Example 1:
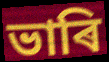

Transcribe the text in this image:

ভাৰি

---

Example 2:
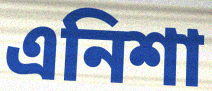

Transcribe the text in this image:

এনিশা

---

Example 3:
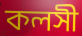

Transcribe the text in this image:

কলসী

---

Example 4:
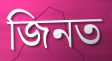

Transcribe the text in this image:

জিনত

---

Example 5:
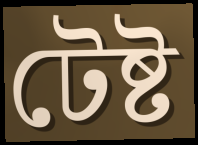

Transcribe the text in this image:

টেষ্ট